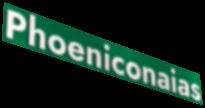
Phoeniconaias